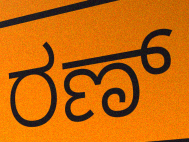
ರಣ್